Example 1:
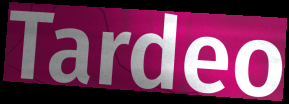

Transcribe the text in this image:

Tardeo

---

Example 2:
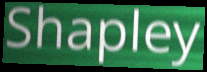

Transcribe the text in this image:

Shapley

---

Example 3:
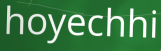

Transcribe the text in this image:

hoyechhi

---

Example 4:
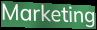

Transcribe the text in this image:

Marketing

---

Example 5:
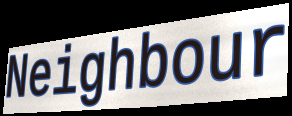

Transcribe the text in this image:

Neighbour